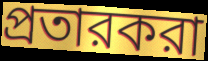
প্রতারকরা